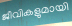
ജീവികളുമായി